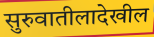
सुरुवातीलादेखील